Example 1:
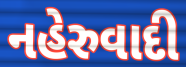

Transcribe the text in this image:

નહેરુવાદી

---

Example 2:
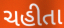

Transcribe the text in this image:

ચહીતા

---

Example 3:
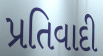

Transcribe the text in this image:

પ્રતિવાદી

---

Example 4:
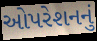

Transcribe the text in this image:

ઓપરેશનનું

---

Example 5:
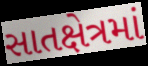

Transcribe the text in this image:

સાતક્ષેત્રમાં